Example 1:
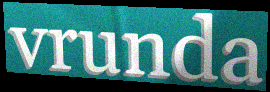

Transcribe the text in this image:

vrunda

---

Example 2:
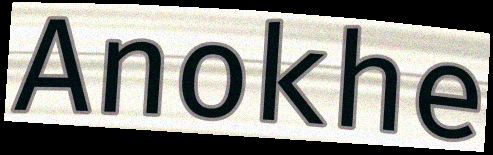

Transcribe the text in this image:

Anokhe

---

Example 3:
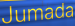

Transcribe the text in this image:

Jumada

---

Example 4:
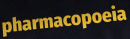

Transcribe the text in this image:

pharmacopoeia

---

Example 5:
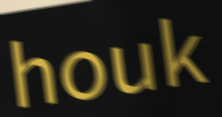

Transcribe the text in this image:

houk